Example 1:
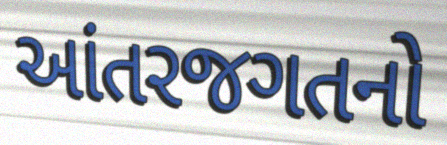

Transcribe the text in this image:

આંતરજગતનો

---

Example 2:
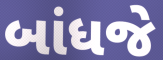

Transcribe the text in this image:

બાંધજે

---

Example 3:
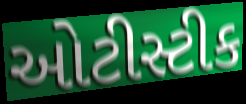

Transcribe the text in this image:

ઓટીસ્ટીક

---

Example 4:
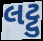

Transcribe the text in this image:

લટ્ટુ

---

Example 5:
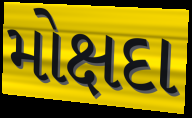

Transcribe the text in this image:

મોક્ષદા